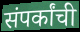
संपर्कांची